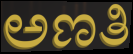
ಅಣತಿ